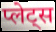
प्‍लेट्स